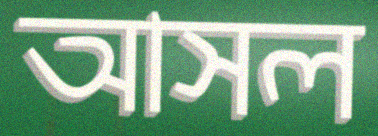
আসল